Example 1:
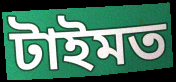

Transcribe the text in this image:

টাইমত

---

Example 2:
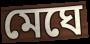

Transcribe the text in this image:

মেঘে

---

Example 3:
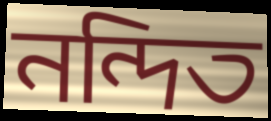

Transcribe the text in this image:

নন্দিত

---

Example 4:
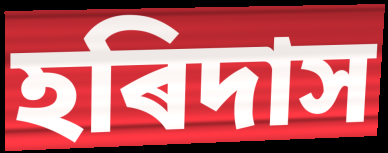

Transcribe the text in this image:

হৰিদাস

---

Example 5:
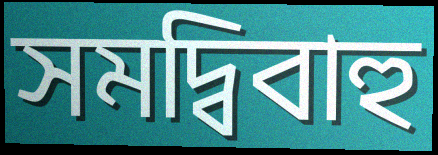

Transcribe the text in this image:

সমদ্বিবাহু